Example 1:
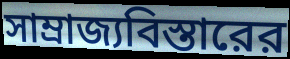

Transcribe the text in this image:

সাম্রাজ্যবিস্তারের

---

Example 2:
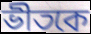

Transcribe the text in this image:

ভীতকে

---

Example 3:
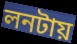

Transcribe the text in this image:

লনটায়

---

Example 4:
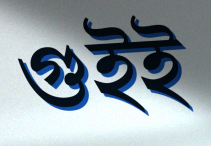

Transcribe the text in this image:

গুইই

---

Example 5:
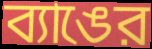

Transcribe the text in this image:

ব্যাঙের